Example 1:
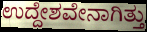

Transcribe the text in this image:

ಉದ್ದೇಶವೇನಾಗಿತ್ತು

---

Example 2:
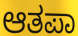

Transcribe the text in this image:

ಆತಪಾ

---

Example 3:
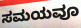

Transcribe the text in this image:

ಸಮಯವೂ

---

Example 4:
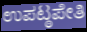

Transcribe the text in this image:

ಉಪಟ್ಠಪೇತಿ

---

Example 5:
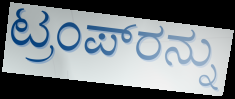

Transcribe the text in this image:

ಟ್ರಂಪ್‌ರನ್ನು